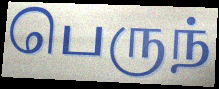
பெருந்